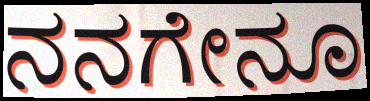
ನನಗೇನೂ